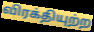
விரக்தியுற்ற